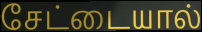
சேட்டையால்